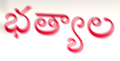
భత్యాల